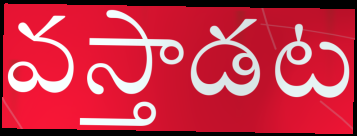
వస్తాడట